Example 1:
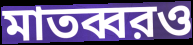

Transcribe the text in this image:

মাতব্বরও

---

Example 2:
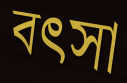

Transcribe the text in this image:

বৎসা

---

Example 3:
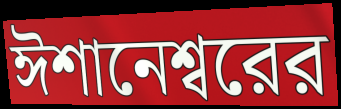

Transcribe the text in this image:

ঈশানেশ্বরের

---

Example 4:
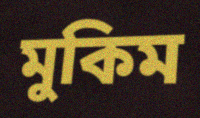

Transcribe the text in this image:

মুকিম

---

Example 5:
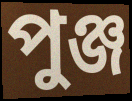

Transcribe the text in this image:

পুঞ্জ